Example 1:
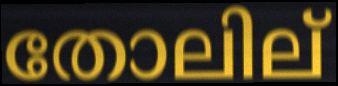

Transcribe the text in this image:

തോലില്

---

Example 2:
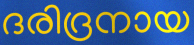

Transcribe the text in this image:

ദരിദ്രനായ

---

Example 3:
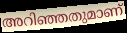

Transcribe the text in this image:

അറിഞ്ഞതുമാണ്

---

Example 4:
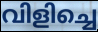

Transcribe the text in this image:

വിളിച്ചെ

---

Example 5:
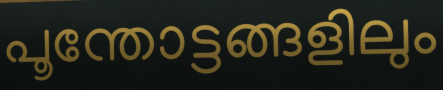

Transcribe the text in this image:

പൂന്തോട്ടങ്ങളിലും